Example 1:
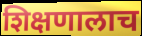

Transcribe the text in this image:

शिक्षणालाच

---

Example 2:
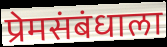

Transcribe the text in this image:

प्रेमसंबंधाला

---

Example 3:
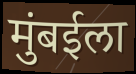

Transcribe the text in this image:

मुंबईला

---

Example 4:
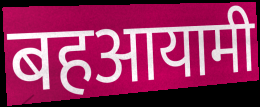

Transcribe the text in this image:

बहआयामी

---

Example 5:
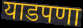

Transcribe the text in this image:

याडपणा